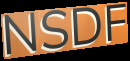
NSDF